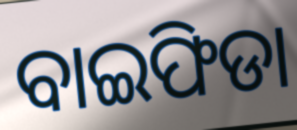
ବାଇଫିଡା